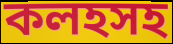
কলহসহ